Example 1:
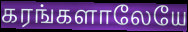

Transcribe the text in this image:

கரங்களாலேயே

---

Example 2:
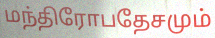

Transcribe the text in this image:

மந்திரோபதேசமும்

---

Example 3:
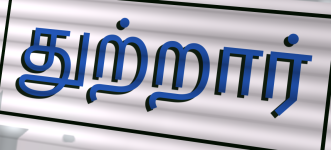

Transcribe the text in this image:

துற்றார்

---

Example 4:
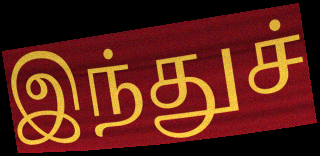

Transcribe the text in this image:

இந்துச்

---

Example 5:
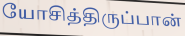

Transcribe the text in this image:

யோசித்திருப்பான்